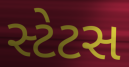
સ્ટેટસ